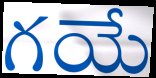
గయే